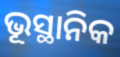
ଭୂସ୍ଥାନିକ